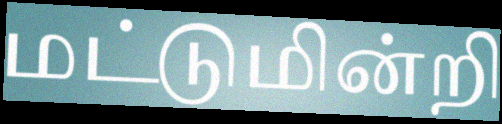
மட்டுமின்றி